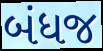
બંધજ